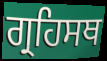
ਗ੍ਰਹਿਸਥ